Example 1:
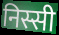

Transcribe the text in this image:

निस्सी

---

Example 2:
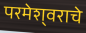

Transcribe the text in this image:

परमेश्वराचे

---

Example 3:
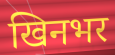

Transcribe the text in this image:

खिनभर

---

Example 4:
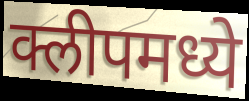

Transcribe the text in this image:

क्लीपमध्ये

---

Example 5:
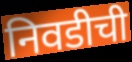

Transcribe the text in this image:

निवडीची